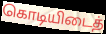
கொடியிடைத்